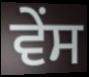
ਵੇਂਸ